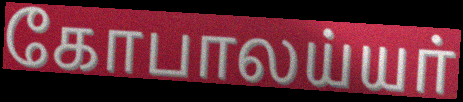
கோபாலய்யர்